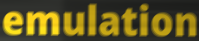
emulation